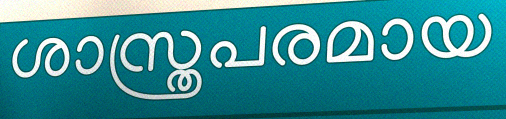
ശാസ്ത്രപരമായ